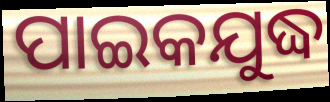
ପାଇକଯୁଦ୍ଧ